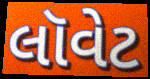
લૉવેટ